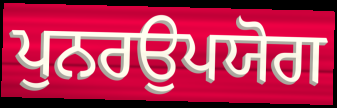
ਪੁਨਰਉਪਯੋਗ